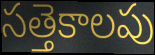
సత్తెకాలపు